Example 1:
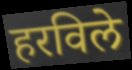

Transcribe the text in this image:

हरविले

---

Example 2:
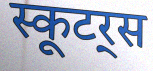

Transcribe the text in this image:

स्कूटर्स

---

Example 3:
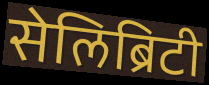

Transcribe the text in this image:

सेलिब्रिटी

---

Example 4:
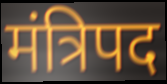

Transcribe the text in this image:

मंत्रिपद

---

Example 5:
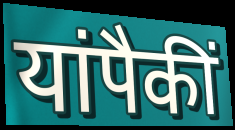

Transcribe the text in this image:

यांपैकीं